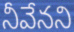
నీవేనని